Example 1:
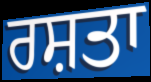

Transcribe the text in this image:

ਰਸ਼ਤਾ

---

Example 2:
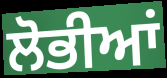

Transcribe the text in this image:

ਲੋਭੀਆਂ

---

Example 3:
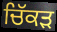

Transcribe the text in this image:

ਚਿੱਕੜ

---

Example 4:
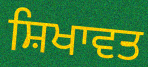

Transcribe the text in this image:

ਸ਼ਿਖਾਵਤ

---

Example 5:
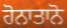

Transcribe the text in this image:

ਹੋਨਾਤਾਨੋ